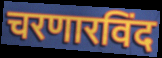
चरणारविंद